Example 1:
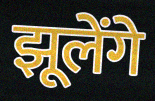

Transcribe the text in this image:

झूलेंगे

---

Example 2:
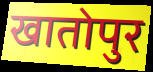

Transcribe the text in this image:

खातोपुर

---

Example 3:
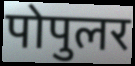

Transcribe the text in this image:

पोपुलर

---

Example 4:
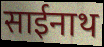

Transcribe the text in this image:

साईनाथ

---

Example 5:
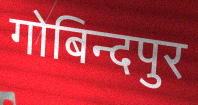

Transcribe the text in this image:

गोबिन्दपुर